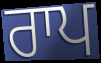
ਰਾਪ